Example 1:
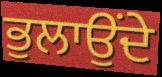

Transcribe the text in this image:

ਭੁਲਾਉਂਦੇ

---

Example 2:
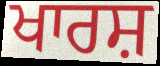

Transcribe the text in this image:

ਖਾਰਸ਼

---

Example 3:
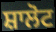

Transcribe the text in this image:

ਸ਼ਾਲੋਟ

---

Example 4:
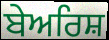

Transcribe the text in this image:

ਬੇਅਰਿਸ਼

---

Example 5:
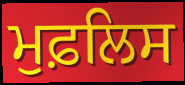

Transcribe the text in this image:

ਮੁਫ਼ਲਿਸ